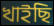
খাইছি